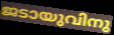
ജടായുവിനു